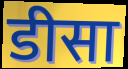
डीसा